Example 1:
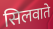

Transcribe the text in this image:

सिलवाते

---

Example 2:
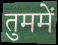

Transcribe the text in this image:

तुममें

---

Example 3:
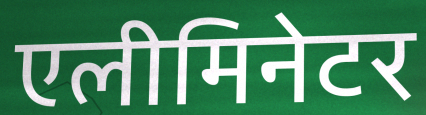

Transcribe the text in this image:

एलीमिनेटर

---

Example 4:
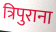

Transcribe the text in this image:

त्रिपुराना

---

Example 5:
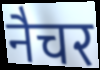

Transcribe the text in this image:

नैचर